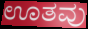
ಊತವು